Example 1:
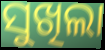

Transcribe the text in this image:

ସୁଖିଲା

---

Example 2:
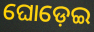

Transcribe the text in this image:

ଘୋଡ଼େଇ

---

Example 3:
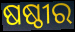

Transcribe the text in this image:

ଷଷ୍ଠୀର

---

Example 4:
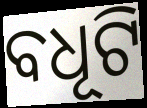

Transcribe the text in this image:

ବଧୂଟି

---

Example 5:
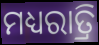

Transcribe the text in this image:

ମଧ୍ଯରାତ୍ରି